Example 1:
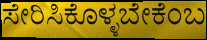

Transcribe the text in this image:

ಸೇರಿಸಿಕೊಳ್ಳಬೇಕೆಂಬ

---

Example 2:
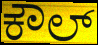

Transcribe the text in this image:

ಕೌಲ್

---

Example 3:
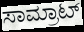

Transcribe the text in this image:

ಸಾಮ್ರಾಟ್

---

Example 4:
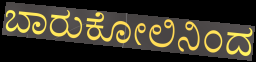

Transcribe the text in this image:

ಬಾರುಕೋಲಿನಿಂದ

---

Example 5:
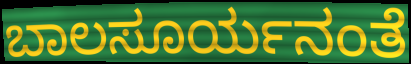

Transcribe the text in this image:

ಬಾಲಸೂರ್ಯನಂತೆ